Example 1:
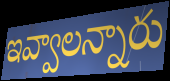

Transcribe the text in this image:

ఇవ్వాలన్నారు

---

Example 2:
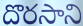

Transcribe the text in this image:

దొరసాని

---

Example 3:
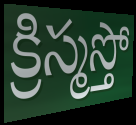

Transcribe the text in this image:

క్రిస్మస్తో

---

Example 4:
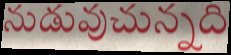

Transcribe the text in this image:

నుడువుచున్నది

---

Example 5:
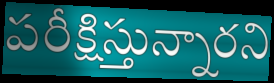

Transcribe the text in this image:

పరీక్షిస్తున్నారని